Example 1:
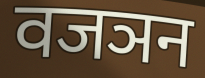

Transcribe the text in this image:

वजञन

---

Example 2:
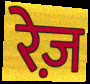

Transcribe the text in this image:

रेज़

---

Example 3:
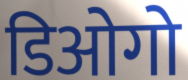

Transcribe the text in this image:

डिओगो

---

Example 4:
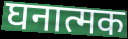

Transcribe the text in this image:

घनात्मक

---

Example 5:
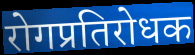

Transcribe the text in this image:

रोगप्रतिरोधक